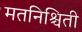
मतनिश्चिती